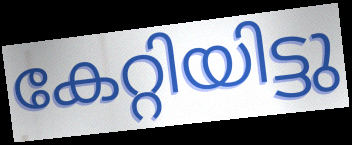
കേറ്റിയിട്ടു